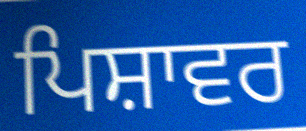
ਪਿਸ਼ਾਵਰ